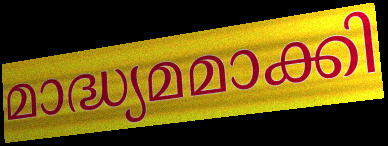
മാദ്ധ്യമമാക്കി